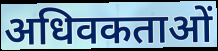
अधिवकताओं